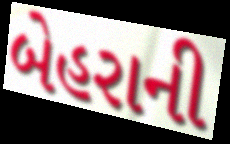
બેહરાની